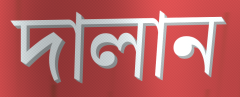
দালান